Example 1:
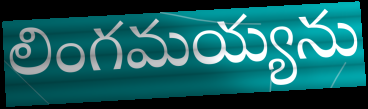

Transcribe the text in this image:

లింగమయ్యను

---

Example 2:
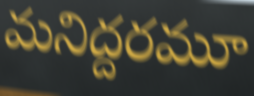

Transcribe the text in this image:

మనిద్దరమూ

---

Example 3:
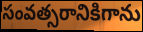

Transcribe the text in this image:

సంవత్సరానికిగాను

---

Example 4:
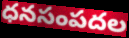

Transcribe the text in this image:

ధనసంపదల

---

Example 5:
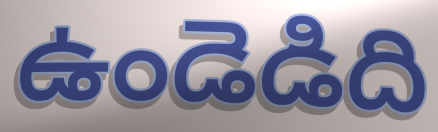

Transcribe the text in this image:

ఉండెడిది